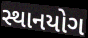
સ્થાનયોગ